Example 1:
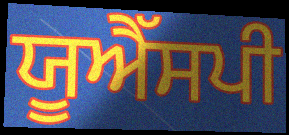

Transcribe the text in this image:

ਯੂਐੱਸਪੀ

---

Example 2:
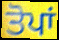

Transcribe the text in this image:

ਤੋਪਾਂ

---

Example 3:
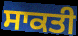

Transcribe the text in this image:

ਸਾਕਤੀ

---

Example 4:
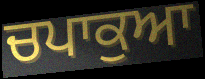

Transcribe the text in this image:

ਚਪਾਕੁਆ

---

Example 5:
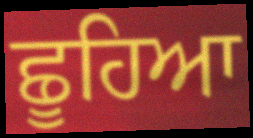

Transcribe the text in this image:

ਛੂਹਿਆ